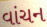
વાંચન